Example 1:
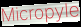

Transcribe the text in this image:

Micropyle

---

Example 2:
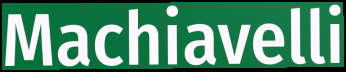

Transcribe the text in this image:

Machiavelli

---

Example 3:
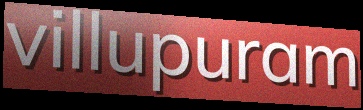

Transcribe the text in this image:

villupuram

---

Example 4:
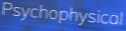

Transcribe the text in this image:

Psychophysical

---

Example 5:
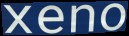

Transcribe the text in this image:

xeno